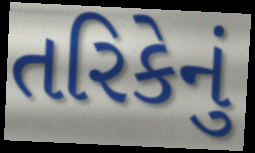
તરિકેનું